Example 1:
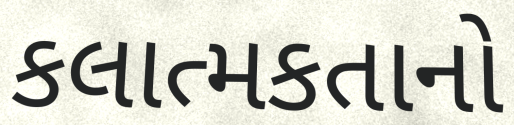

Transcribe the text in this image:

કલાત્મકતાનો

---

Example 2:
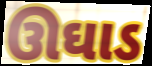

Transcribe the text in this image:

ઊઘાડ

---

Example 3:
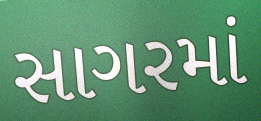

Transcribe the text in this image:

સાગરમાં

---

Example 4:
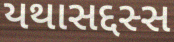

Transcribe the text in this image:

યથાસદ્દસ્સ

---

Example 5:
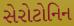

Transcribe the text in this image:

સેરોટોનિન